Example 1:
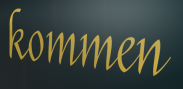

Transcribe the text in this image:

kommen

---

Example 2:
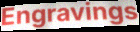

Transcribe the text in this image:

Engravings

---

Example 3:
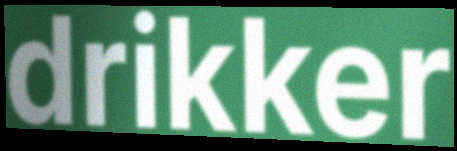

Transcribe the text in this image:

drikker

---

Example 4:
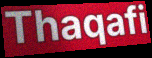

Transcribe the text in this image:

Thaqafi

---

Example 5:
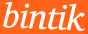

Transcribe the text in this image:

bintik